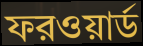
ফরওয়ার্ড